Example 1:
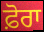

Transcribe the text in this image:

ਫ਼ੋਰਾ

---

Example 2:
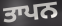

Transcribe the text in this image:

ਤਾਪਨ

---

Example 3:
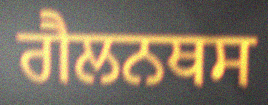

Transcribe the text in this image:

ਗੈਲਨਥਸ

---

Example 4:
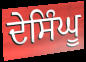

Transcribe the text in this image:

ਦੇਸਿੰਘੂ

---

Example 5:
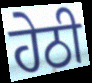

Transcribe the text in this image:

ਹੇਠੀ